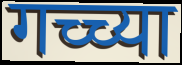
गच्च्या